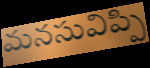
మనసువిప్పి